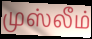
முஸ்லீம்